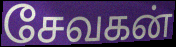
சேவகன்